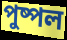
পুষ্পল